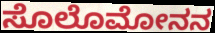
ಸೊಲೊಮೋನನ